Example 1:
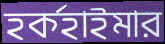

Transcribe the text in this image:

হর্কহাইমার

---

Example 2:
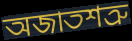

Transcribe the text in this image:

অজাতশত্রু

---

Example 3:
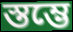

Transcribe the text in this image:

স্তম্ভে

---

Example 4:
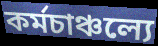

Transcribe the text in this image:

কর্মচাঞ্চল্যে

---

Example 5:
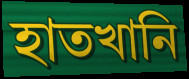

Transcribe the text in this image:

হাতখানি